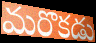
మరొకడు